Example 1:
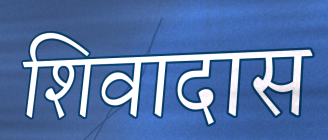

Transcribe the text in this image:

शिवादास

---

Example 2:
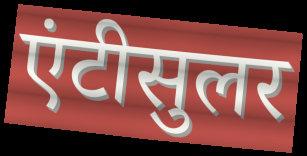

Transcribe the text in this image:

एंटीसुलर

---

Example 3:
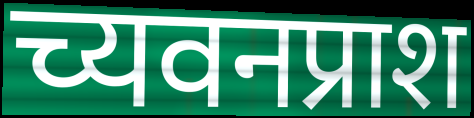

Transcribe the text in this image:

च्‍यवनप्राश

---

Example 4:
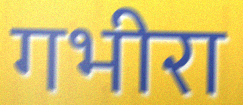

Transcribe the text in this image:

गभीरा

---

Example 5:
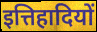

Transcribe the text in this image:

इत्तिहादियों